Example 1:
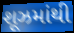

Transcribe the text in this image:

શૂઝમાંથી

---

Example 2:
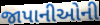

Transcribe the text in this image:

જાપાનીઓની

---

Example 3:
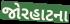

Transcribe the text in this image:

જોરહાટના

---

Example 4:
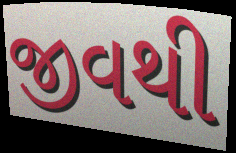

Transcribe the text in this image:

જીવથી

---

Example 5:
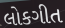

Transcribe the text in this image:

લોકગીત